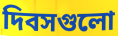
দিবসগুলো